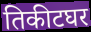
तिकीटघर